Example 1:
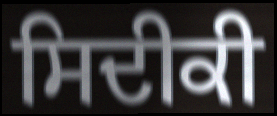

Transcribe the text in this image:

ਸਿਦੀਕੀ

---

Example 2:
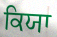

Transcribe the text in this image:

ਕਿਯਾ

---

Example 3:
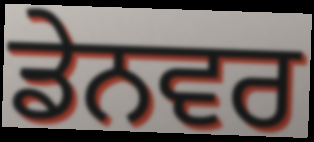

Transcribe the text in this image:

ਡੇਨਵਰ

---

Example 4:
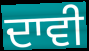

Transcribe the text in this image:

ਦਾਵੀ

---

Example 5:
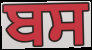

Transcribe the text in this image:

ਬਸ